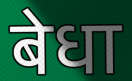
बेधा